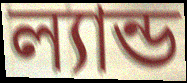
ল্যান্ড